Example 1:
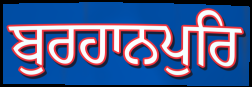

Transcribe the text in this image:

ਬੁਰਹਾਨਪੁਰਿ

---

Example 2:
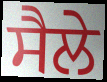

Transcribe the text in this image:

ਸੈਲੇ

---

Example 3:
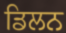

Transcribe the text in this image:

ਡਿਲਨ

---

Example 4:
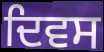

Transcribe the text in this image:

ਦਿਵਸ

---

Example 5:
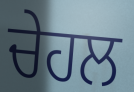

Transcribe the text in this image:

ਚੇਹਲ